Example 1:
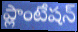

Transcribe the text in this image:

ప్లాంటేషన్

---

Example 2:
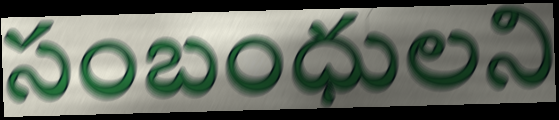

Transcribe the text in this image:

సంబంధులని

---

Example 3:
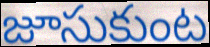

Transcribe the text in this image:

జూసుకుంట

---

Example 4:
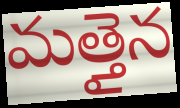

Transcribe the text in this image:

మత్తైన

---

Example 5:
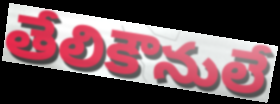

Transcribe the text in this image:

తేలికౌనులే